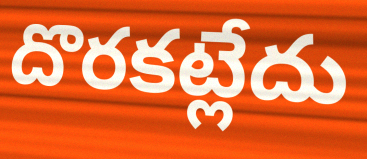
దొరకట్లేదు